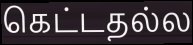
கெட்டதல்ல